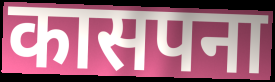
कासपना